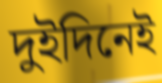
দুইদিনেই